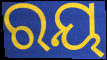
ରୟ